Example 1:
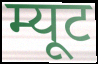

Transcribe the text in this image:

म्यूट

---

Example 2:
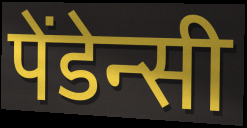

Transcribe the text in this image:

पेंडेन्सी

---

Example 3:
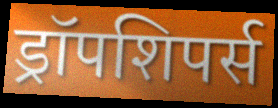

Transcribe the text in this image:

ड्रॉपशिपर्स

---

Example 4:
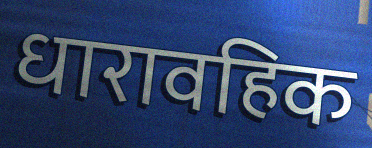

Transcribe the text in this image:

धारावहिक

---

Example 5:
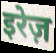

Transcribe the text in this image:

इरेज़